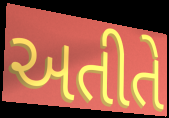
અતીતે